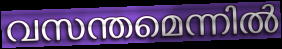
വസന്തമെന്നിൽ